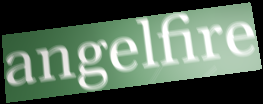
angelfire